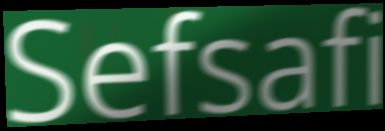
Sefsafi